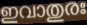
ഇവാതുരഃ